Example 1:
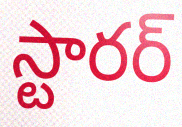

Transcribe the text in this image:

స్టారర్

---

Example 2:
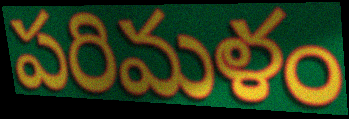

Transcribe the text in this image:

పరిమళం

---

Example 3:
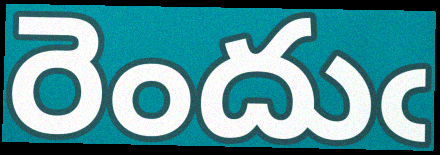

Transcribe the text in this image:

రెందుఁ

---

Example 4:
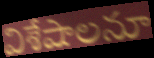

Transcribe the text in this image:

విశేషాలనూ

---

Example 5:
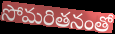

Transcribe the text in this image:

సోమరితనంతో